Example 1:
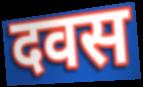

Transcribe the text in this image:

दवस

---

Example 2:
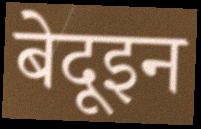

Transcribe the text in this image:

बेदूइन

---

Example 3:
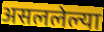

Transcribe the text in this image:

असललेल्या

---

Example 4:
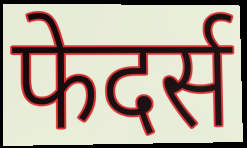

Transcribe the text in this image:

फेदर्स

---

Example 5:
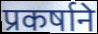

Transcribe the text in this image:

प्रकर्षाने